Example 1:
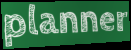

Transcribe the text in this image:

planner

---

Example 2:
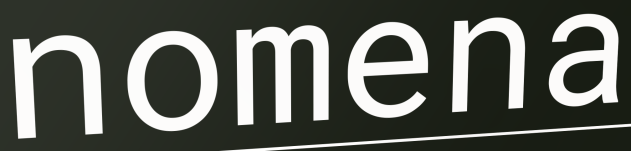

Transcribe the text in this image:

nomena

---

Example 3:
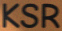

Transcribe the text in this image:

KSR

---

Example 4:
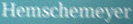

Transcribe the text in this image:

Hemschemeyer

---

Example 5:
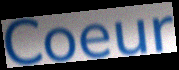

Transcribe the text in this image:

Coeur